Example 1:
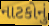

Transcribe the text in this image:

નાટકોનું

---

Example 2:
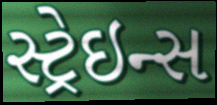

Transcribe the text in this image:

સ્ટ્રેઇન્સ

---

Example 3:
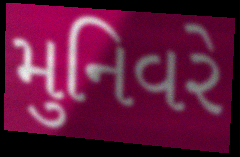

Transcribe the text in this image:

મુનિવરે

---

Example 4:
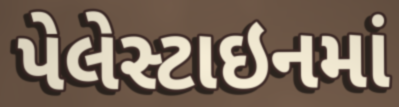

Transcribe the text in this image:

પેલેસ્ટાઇનમાં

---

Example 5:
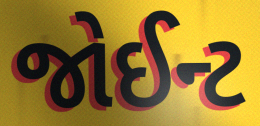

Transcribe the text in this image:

જોઈન્ટ